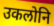
उकलोनि